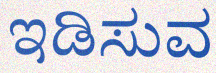
ಇಡಿಸುವ